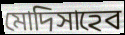
মোদিসাহেব